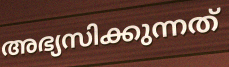
അഭ്യസിക്കുന്നത്